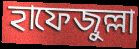
হাফেজুল্লা